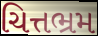
ચિત્તભ્રમ